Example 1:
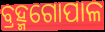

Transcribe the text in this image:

ବ୍ରହ୍ମଗୋପାଳ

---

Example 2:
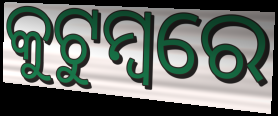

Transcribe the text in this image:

କୁଟୁମ୍ଵରେ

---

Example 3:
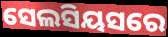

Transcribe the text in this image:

ସେଲସିୟସରେ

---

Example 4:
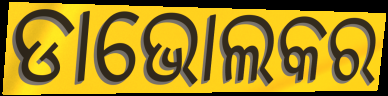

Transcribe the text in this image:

ଡାଭୋଲକର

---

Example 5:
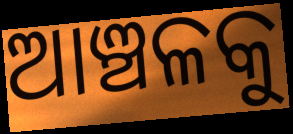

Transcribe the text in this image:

ଆଞ୍ଚଳକୁ